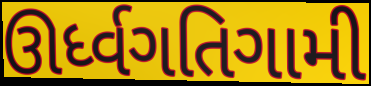
ઊર્ધ્વગતિગામી